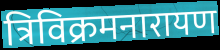
त्रिविक्रमनारायण